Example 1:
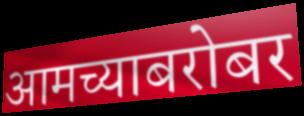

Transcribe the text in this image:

आमच्याबरोबर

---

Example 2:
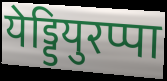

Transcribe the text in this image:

येड्डियुरप्पा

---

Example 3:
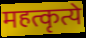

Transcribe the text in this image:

महत्कृत्ये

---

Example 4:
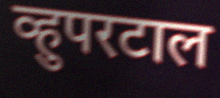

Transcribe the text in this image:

व्हुपरटाल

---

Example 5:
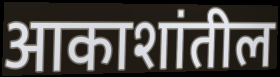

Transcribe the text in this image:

आकाशांतील